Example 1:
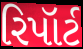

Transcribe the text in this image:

રિપૉર્ટ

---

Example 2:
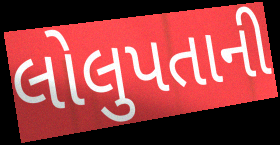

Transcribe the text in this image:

લોલુપતાની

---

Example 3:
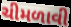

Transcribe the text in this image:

ચીમળાવી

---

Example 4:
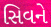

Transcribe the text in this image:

સિવને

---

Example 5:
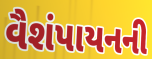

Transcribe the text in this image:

વૈશંપાયનની